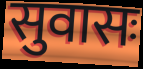
सुवासः